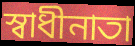
স্বাধীনাতা